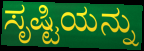
ಸೃಷ್ಟಿಯನ್ನು